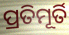
ପ୍ରତିମୂର୍ତି